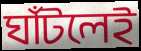
ঘাঁটলেই